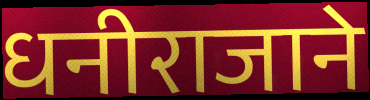
धनीराजाने